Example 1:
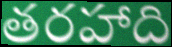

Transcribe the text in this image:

తరహాది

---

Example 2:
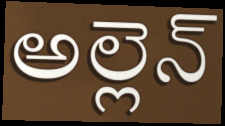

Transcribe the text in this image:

అల్లెన్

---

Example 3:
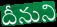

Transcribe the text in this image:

దీనుని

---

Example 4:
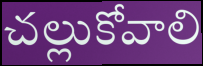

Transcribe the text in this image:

చల్లుకోవాలి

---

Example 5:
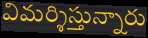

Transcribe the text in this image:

విమర్శిస్తున్నారు